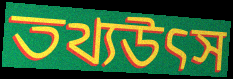
তথ্যউৎস